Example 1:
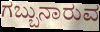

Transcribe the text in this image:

ಗಬ್ಬುನಾರುವ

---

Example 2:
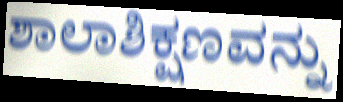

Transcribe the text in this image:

ಶಾಲಾಶಿಕ್ಷಣವನ್ನು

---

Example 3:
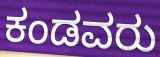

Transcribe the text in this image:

ಕಂಡವರು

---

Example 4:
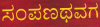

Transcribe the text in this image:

ಸಂಪಣಥವಗ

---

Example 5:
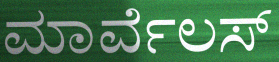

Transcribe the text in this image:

ಮಾರ್ವೆಲಸ್